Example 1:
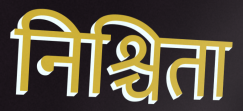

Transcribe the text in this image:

निश्चिता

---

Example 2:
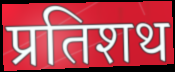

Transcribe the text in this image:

प्रतिशथ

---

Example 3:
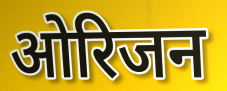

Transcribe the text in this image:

ओरिजन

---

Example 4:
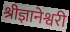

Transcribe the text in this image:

श्रीज्ञानेश्वरी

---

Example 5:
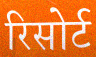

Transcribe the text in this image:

रिसोर्ट